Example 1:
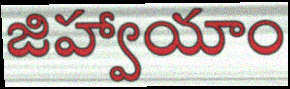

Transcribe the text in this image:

జిహ్వాయాం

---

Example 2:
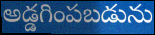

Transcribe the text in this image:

అడ్డగింపబడును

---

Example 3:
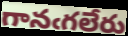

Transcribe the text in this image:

గానఁగలేరు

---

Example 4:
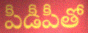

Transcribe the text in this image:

పీడీపీతో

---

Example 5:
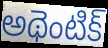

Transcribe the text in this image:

అథెంటిక్